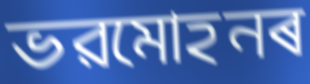
ভৱমোহনৰ